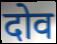
दोव